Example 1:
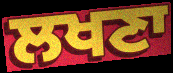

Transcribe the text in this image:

ਲਖਣਾ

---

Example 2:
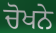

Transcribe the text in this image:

ਚੋਖਨੇ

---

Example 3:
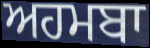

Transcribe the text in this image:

ਅਹਮਬਾ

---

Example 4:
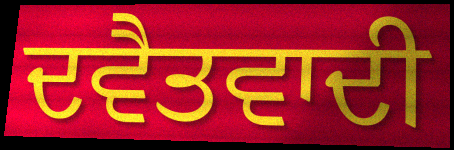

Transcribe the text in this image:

ਦਵੈਤਵਾਦੀ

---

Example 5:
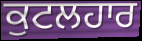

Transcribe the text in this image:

ਕੁਟਲਹਾਰ